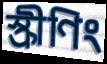
স্ক্ৰীণিং